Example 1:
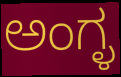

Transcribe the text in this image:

ಅಂಗ್ಳ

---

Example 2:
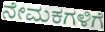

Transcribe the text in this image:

ನೇಮಕಗಳಿಗೆ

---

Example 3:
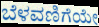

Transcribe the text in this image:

ಬೆಳವಣಿಗೆಯೇ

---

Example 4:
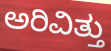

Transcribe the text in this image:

ಅರಿವಿತ್ತು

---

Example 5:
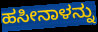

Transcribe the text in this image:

ಹಸೀನಾಳನ್ನು